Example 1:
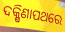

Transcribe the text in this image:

ଦକ୍ଷିଣାପଥରେ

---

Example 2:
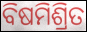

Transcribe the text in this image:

ବିଷମିଶ୍ରିତ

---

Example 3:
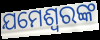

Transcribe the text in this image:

ଯମେଶ୍ୱରଙ୍କ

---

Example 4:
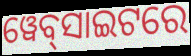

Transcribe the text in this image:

ୱେବ୍‍ସାଇଟରେ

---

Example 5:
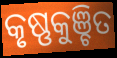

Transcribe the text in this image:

କୃଷ୍ଣକୁଞ୍ଚିତ